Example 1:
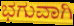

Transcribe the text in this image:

ಭಗುವಾಗಿ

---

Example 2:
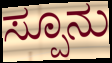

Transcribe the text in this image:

ಸ್ಪೂನು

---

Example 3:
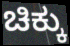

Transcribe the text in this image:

ಚಿಕ್ಕು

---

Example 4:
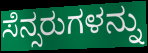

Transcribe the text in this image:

ಸೆನ್ಸರುಗಳನ್ನು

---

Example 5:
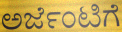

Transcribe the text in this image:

ಅರ್ಜೆಂಟಿಗೆ